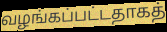
வழங்கப்பட்டதாகத்